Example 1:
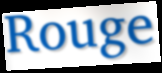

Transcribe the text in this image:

Rouge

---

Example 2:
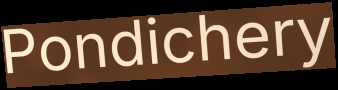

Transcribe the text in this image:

Pondichery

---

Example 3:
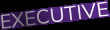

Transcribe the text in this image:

EXECUTIVE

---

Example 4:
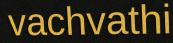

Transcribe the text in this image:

vachvathi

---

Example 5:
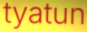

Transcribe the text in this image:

tyatun